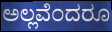
ಅಲ್ಲವೆಂದರೂ